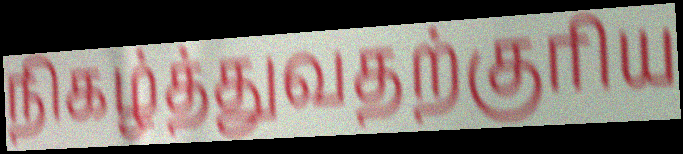
நிகழ்த்துவதற்குரிய